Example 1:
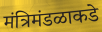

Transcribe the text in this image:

मंत्रिमंडळाकडे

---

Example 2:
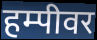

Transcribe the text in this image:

हम्पीवर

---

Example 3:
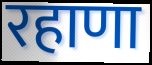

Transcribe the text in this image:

रहाणा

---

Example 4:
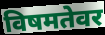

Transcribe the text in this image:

विषमतेवर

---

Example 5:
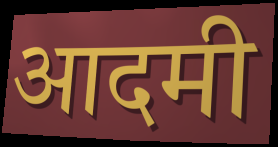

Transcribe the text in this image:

आदमी